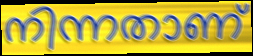
നിന്നതാണ്